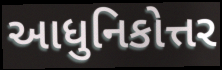
આધુનિકોત્તર